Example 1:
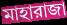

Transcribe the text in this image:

মাহারাজা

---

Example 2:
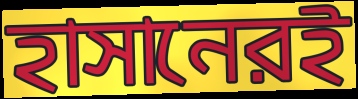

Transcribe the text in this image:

হাসানেরই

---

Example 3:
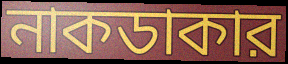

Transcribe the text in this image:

নাকডাকার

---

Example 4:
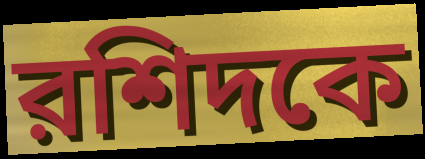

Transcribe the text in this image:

রশিদকে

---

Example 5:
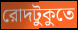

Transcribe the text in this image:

রোদটুকুতে